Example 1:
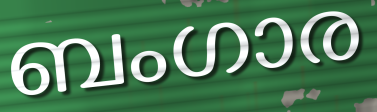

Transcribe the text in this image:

ബംഗാര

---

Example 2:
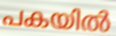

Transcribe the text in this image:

പകയിൽ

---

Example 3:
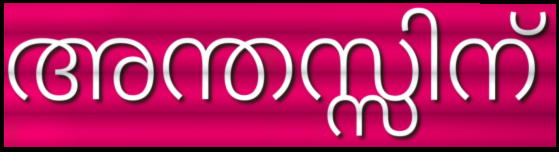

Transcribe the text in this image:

അന്തസ്സിന്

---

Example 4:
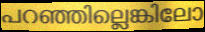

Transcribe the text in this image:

പറഞ്ഞില്ലെങ്കിലോ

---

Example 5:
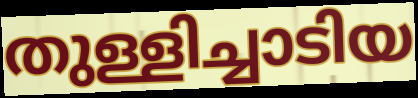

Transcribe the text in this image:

തുള്ളിച്ചാടിയ